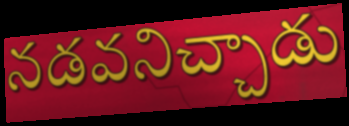
నడవనిచ్చాడు